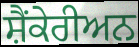
ਸ਼ੈਂਕੇਰੀਅਨ